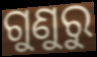
ଗୁଣୁରୁ